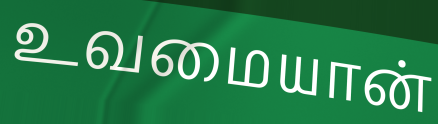
உவமையான்